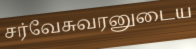
சர்வேசுவரனுடைய